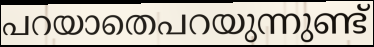
പറയാതെപറയുന്നുണ്ട്